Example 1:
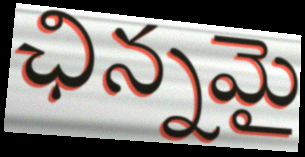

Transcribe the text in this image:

ఛిన్నమై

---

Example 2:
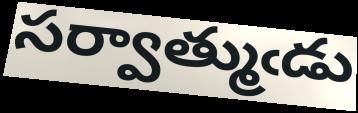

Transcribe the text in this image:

సర్వాత్ముఁడు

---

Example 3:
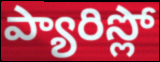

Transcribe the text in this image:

ప్యారిస్లో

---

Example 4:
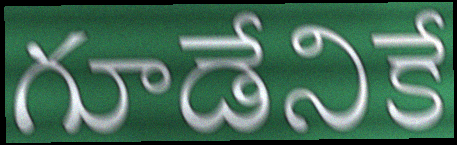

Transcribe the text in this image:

గూడేనికే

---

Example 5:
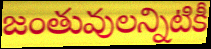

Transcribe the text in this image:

జంతువులన్నిటికీ